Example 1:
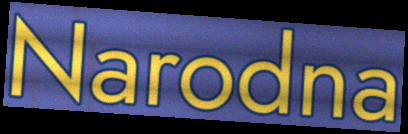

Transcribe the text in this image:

Narodna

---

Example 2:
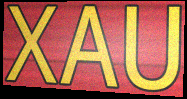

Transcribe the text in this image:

XAU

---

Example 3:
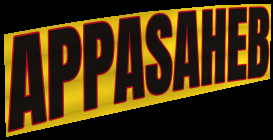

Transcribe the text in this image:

APPASAHEB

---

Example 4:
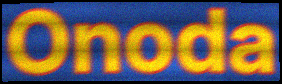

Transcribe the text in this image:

Onoda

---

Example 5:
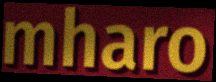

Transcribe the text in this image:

mharo